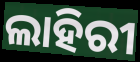
ଲାହିରୀ